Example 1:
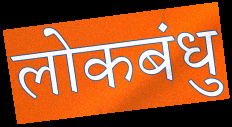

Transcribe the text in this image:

लोकबंधु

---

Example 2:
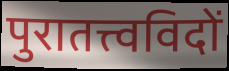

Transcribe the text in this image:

पुरातत्त्वविदों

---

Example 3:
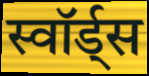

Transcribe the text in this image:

स्‍वॉर्ड्स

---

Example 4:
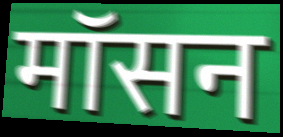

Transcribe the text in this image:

मॉसन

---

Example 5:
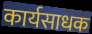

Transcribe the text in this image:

कार्यसाधक